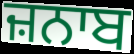
ਜ਼ਨਾਬ